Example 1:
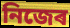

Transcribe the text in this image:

নিজেৰ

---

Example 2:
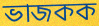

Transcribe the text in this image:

ভাজকক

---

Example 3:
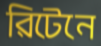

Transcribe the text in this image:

ৱিটেনে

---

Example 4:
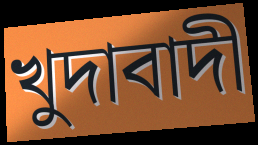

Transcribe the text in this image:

খুদাবাদী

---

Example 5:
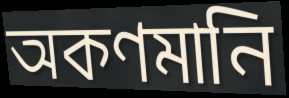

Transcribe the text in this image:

অকণমানি